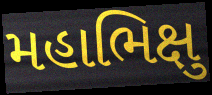
મહાભિક્ષુ